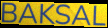
BAKSAL